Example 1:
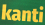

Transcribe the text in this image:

kanti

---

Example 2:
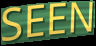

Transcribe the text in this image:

SEEN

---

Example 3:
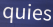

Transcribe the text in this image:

quies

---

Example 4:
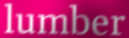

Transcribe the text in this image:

lumber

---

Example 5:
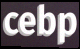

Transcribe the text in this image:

cebp